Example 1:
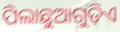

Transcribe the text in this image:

ପିଲାଛୁଆଗୁଡ଼ିଏ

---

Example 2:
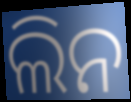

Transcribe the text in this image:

ଲିନ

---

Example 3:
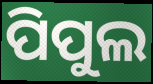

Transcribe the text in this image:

ପିପୁଲ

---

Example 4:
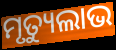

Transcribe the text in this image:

ମୃତ୍ୟୁଲାଭ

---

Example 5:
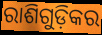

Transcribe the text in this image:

ରାଶିଗୁଡ଼ିକର